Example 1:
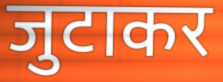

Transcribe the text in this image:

जुटाकर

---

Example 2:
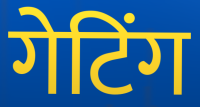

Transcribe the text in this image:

गेटिंग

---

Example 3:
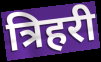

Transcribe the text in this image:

त्रिहरी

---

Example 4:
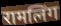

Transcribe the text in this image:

रामलिंग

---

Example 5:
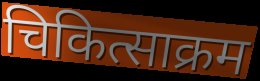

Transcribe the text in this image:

चिकित्साक्रम